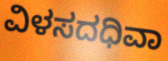
ವಿಳಸದಧಿವಾ